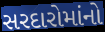
સરદારોમાંનો